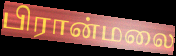
பிரான்மலை